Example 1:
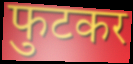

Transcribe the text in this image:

फुटकर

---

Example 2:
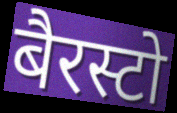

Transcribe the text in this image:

बैरस्टो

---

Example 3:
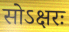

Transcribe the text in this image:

सोऽक्षरः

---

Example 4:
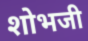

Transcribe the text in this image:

शोभजी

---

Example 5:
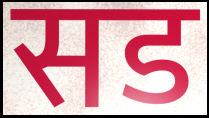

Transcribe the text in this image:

सड